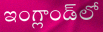
ఇంగ్లాండ్‌లో